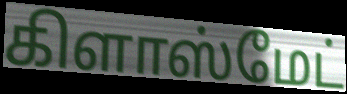
கிளாஸ்மேட்